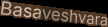
Basaveshvara